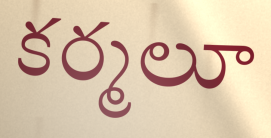
కర్మలూ